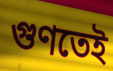
গুণতেই